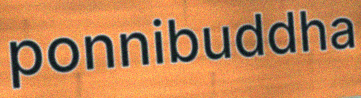
ponnibuddha